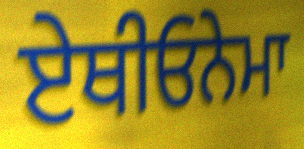
ਏਥੀਓਨੇਮਾ